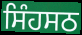
ਸਿੰਹਸਠ